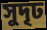
সুদৃঢ